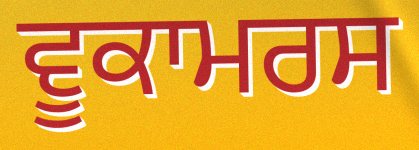
ਵੂਕਾਮਰਸ